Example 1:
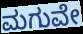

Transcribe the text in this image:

ಮಗುವೇ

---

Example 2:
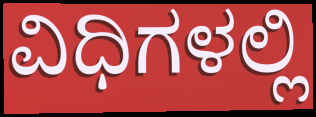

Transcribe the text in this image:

ವಿಧಿಗಳಲ್ಲಿ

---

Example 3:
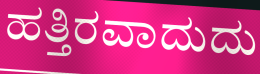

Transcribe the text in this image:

ಹತ್ತಿರವಾದುದು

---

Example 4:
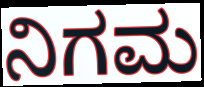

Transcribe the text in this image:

ನಿಗಮ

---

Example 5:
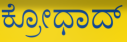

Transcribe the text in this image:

ಕ್ರೋಧಾದ್